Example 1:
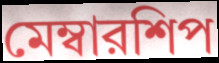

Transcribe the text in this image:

মেম্বারশিপ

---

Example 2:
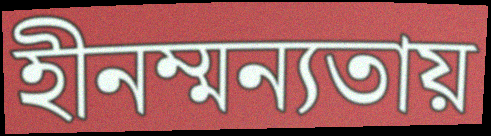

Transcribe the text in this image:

হীনম্মন্যতায়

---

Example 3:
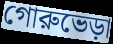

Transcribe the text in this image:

গোরুভেড়া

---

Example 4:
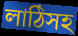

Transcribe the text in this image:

লাঠিসহ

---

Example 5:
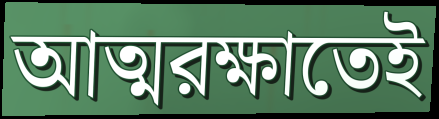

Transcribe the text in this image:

আত্মরক্ষাতেই